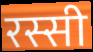
रस्सी